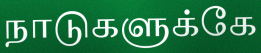
நாடுகளுக்கே